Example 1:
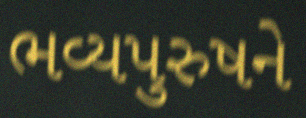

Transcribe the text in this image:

ભવ્યપુરુષને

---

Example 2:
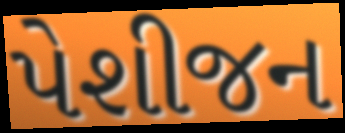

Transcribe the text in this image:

પેશીજન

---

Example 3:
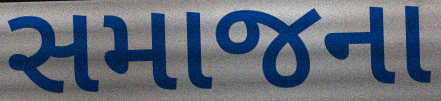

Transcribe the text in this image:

સમાજના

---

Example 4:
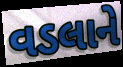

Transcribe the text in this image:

વડલાને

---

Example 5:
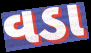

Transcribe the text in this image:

વડા